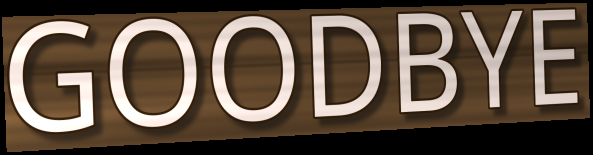
GOODBYE